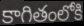
కాగితంలోకి